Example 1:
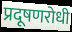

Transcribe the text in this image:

प्रदूषणरोधी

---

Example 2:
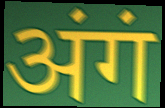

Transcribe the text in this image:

अंगं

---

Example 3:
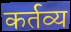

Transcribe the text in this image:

कर्तव्य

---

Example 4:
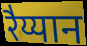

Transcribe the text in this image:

रैय्यान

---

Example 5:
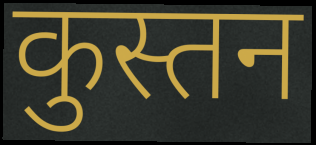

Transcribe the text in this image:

कुस्तन